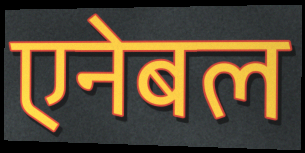
एनेबल